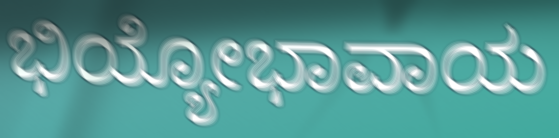
ಭಿಯ್ಯೋಭಾವಾಯ